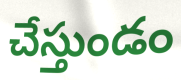
చేస్తుండం